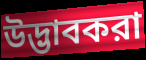
উদ্ভাবকরা